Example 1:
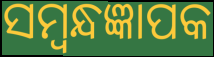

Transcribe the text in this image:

ସମ୍ବନ୍ଧଜ୍ଞାପକ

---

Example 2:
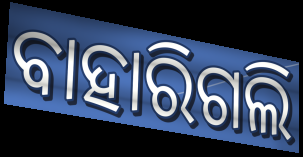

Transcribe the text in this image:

ବାହାରିଗଲି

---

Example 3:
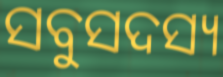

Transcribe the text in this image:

ସବୁସଦସ୍ୟ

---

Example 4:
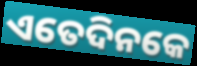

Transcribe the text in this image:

ଏତେଦିନକେ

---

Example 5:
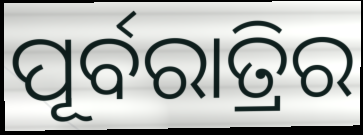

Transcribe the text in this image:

ପୂର୍ବରାତ୍ରିର